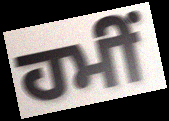
ਹਮੀਂ